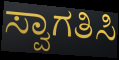
ಸ್ವಾಗತಿಸಿ